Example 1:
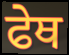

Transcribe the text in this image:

ਫੇਥ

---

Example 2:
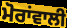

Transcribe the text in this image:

ਮੋਰਾਂਵਾਲੀ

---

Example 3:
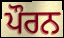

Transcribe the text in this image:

ਪੌਰਨ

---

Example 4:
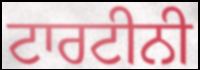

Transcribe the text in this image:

ਟਾਰਟੀਨੀ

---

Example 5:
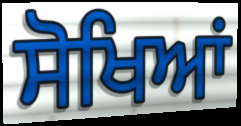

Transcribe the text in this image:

ਸੋਖਿਆਂ